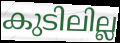
കുടിലില്ല